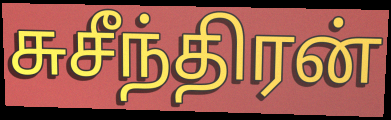
சுசீந்திரன்